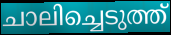
ചാലിച്ചെടുത്ത്